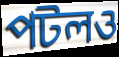
পটলও